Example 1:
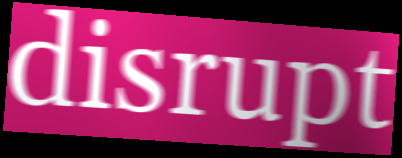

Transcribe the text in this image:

disrupt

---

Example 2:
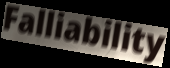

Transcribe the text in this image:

Falliability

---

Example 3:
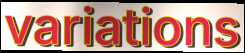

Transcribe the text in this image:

variations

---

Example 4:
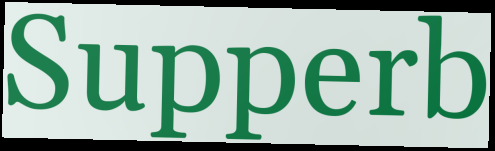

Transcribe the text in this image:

Supperb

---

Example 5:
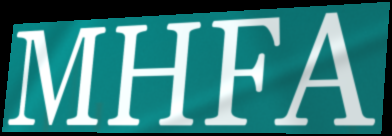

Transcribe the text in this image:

MHFA